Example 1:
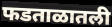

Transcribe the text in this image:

फडताळातली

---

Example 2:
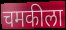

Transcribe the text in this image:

चमकीला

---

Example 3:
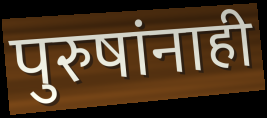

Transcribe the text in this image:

पुरुषांनाही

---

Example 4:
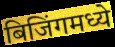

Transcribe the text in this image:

बिजिंगमध्ये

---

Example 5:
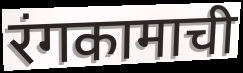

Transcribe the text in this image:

रंगकामाची